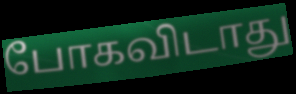
போகவிடாது